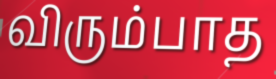
விரும்பாத